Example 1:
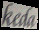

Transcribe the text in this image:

keda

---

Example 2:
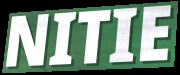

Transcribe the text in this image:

NITIE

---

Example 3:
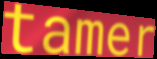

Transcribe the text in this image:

tamer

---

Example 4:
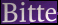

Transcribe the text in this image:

Bitte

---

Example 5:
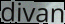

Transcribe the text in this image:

divan